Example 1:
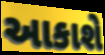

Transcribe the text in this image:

આકાશે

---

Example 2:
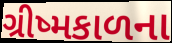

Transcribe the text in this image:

ગ્રીષ્મકાળના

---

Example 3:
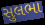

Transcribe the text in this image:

સુલભા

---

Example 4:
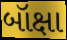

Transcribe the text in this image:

બૉક્ષા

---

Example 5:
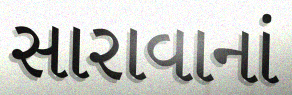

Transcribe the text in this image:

સારાવાનાં